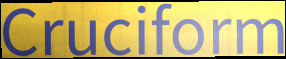
Cruciform